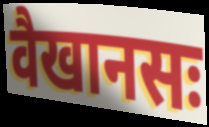
वैखानसः